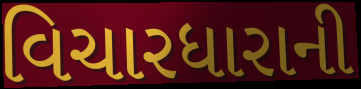
વિચારધારાની